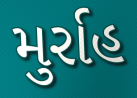
મુર્રાહ